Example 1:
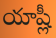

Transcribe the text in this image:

యాష్లీ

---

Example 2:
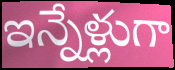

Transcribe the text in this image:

ఇన్నేళ్లుగా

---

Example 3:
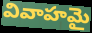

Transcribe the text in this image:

వివాహమై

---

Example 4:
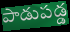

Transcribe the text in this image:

పాడుపడ్డ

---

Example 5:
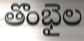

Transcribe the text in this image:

తొంభైల